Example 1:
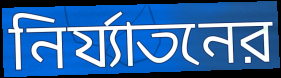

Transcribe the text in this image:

নির্য্যাতনের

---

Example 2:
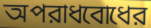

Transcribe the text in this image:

অপরাধবোধের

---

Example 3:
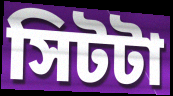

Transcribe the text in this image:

সিটটা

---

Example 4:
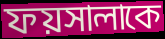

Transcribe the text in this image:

ফয়সালাকে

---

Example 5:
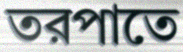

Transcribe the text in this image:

তরপাতে